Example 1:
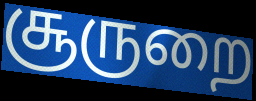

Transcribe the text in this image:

சூருறை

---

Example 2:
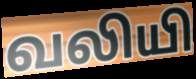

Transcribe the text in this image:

வலியி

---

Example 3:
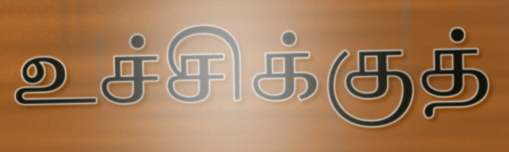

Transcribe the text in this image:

உச்சிக்குத்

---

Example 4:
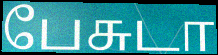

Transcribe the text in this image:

பேசுடா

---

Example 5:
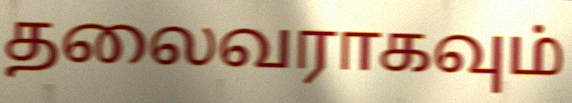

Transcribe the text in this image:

தலைவராகவும்